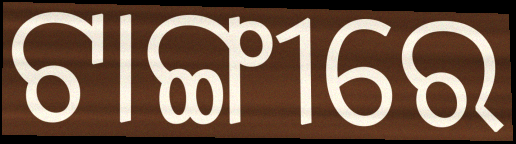
ଟାଙ୍ଗୀରେ